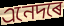
এনেদৰে